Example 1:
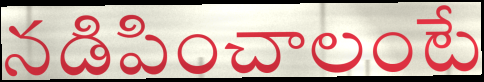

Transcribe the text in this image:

నడిపించాలంటే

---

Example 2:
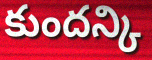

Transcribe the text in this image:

కుందన్కి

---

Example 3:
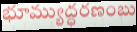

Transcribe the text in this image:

భూమ్యుద్ధరణంబు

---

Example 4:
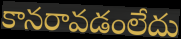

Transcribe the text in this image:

కానరావడంలేదు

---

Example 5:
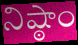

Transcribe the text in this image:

నిష్ఠాం